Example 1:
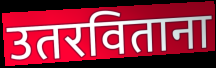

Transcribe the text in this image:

उतरविताना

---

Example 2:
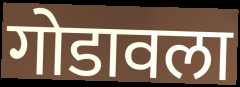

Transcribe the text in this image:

गोडावला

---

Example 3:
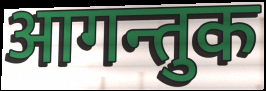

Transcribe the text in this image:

आगन्तुक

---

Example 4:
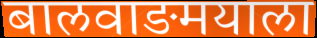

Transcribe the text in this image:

बालवाङमयाला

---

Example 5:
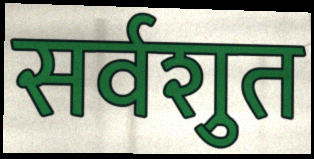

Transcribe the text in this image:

सर्वश्रुत